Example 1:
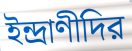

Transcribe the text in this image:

ইন্দ্রাণীদির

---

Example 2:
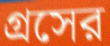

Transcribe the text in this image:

গ্রসের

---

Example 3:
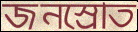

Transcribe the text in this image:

জনস্রোত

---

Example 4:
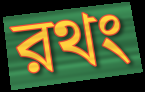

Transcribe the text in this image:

রথং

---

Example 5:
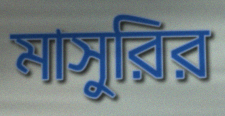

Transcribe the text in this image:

মাসুরির